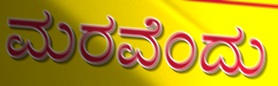
ಮರವೆಂದು